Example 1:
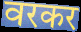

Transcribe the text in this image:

वरकर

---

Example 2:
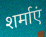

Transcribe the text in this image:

शर्माएं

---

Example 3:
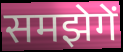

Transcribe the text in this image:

समझेगें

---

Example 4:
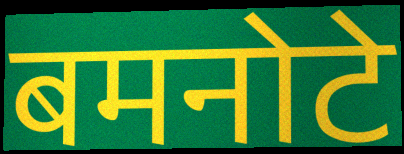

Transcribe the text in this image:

बमनोटे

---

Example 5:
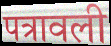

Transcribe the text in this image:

पत्रावली